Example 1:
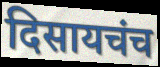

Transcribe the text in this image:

दिसायचंच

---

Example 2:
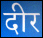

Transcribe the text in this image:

दीर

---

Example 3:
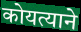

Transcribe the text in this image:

कोयत्याने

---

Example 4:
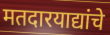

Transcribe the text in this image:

मतदारयाद्यांचे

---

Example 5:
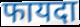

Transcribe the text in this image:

फायदा